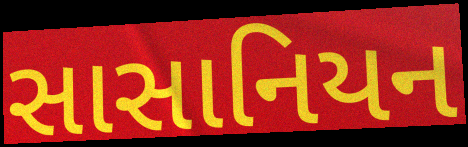
સાસાનિયન